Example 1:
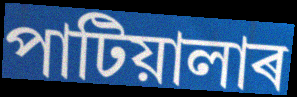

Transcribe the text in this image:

পাটিয়ালাৰ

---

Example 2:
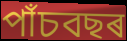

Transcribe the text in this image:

পাঁচবছৰ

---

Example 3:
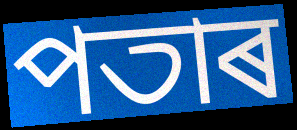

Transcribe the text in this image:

পতাৰ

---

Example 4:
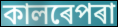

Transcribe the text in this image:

কালৰেপৰা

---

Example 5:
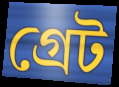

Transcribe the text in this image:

গ্ৰেট